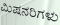
ಮಿಷನರಿಗಳು